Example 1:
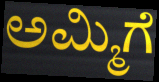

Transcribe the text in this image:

ಅಮ್ಮಿಗೆ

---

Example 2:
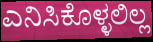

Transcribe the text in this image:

ಎನಿಸಿಕೊಳ್ಳಲಿಲ್ಲ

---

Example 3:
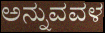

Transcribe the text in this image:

ಅನ್ನುವವಳ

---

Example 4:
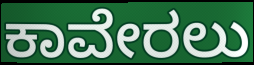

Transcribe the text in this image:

ಕಾವೇರಲು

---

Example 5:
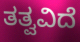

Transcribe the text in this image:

ತತ್ವವಿದೆ